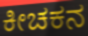
ಕೀಚಕನ